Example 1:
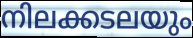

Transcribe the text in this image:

നിലക്കടലയും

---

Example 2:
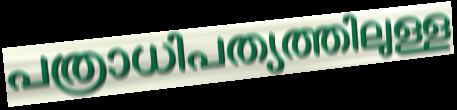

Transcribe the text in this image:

പത്രാധിപത്യത്തിലുള്ള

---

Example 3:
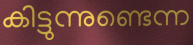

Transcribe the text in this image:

കിട്ടുന്നുണ്ടെന്ന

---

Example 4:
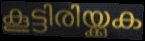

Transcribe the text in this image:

കൂട്ടിരിയ്ക്കുക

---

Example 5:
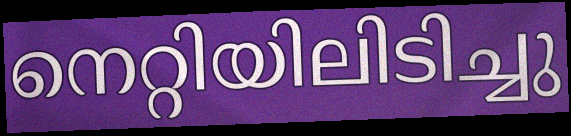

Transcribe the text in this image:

നെറ്റിയിലിടിച്ചു